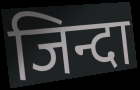
जिन्‍दा